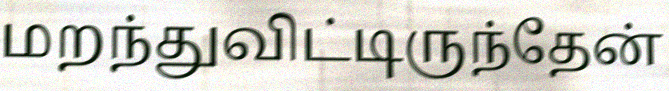
மறந்துவிட்டிருந்தேன்